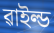
ৱাইল্ড